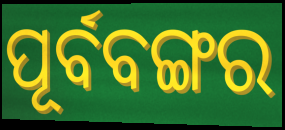
ପୂର୍ବବଙ୍ଗର